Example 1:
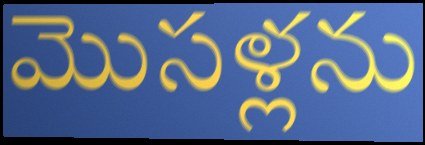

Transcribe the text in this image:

మొసళ్లను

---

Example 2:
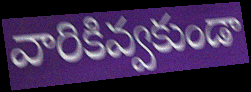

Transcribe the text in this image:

వారికివ్వకుండా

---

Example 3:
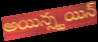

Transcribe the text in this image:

అయిన్స్టయిన్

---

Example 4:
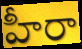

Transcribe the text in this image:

హీరా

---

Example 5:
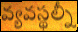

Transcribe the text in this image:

వ్యవస్థల్నీ